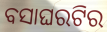
ବସାଘରଟିର